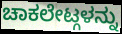
ಚಾಕಲೇಟ್ಗಳನ್ನು